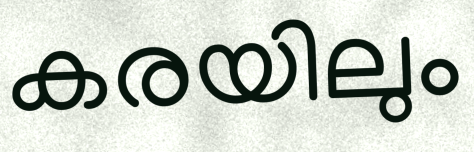
കരയിലും